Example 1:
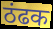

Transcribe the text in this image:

ठंढक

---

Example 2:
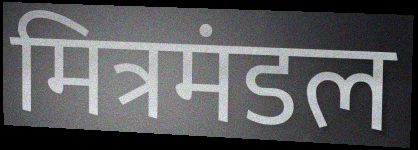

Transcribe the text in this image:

मित्रमंडल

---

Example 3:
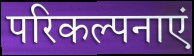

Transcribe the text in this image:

परिकल्पनाएं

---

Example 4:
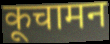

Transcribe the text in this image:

कूचामन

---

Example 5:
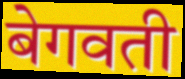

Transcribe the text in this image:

बेगवती